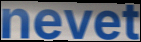
nevet